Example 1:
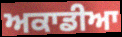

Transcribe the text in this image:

ਅਕਾਡੀਆ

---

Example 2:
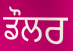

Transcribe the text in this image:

ਡੌਲਰ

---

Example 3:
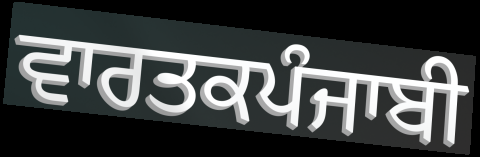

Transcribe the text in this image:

ਵਾਰਤਕਪੰਜਾਬੀ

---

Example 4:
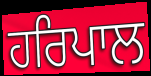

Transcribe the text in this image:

ਹਰਿਪਾਲ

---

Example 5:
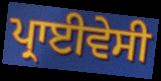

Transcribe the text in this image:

ਪ੍ਰਾਈਵੇਸੀ